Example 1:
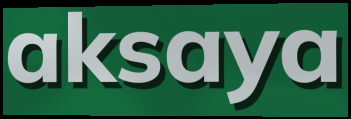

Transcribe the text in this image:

aksaya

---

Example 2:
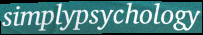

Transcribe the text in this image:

simplypsychology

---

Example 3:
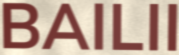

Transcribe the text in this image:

BAILII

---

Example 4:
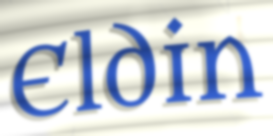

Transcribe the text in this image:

Eldin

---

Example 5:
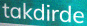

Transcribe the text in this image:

takdirde